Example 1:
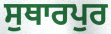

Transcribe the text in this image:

ਸੁਥਾਰਪੁਰ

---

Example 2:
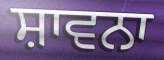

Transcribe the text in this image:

ਸ਼ਾਵਨਾ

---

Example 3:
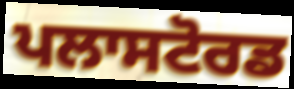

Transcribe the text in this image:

ਪਲਾਸਟੋਰਡ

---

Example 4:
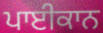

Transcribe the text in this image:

ਪਾਈਕਾਨ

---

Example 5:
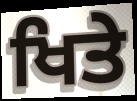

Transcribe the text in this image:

ਖਿਤੇ